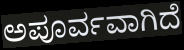
ಅಪೂರ್ವವಾಗಿದೆ